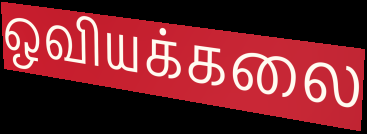
ஒவியக்கலை